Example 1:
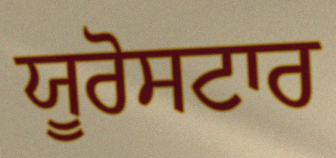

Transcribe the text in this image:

ਯੂਰੋਸਟਾਰ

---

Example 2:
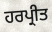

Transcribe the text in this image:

ਹਰਪ੍ਰੀਤ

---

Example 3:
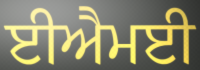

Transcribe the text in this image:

ਈਐਮਈ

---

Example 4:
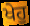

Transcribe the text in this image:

ਖੇਹੁ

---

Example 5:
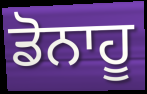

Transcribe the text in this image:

ਡੋਨਾਹੂ